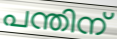
പന്തിന്